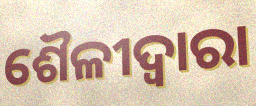
ଶୈଳୀଦ୍ୱାରା